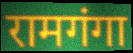
रामगंगा